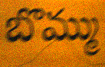
బొమ్ము